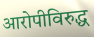
आरोपीविरुद्ध